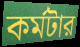
কর্মটার